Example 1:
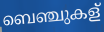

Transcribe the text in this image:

ബെഞ്ചുകള്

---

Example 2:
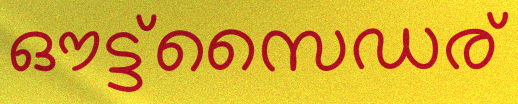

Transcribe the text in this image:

ഔട്ട്സൈഡര്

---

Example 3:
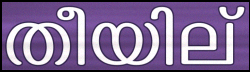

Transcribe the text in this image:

തീയില്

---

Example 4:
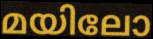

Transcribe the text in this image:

മയിലോ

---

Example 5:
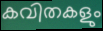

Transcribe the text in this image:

കവിതകളും